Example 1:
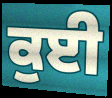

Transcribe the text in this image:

ਕੁਈ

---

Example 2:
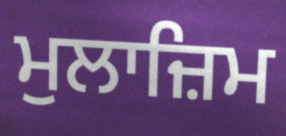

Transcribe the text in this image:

ਮੁਲਾਜ਼ਿਮ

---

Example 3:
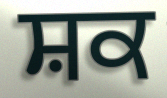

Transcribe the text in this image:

ਸ਼ਕ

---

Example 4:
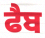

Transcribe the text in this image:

ਫੈਬ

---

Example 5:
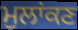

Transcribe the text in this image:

ਮੁਲਾਂਕਣ